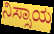
ನಿಸ್ಸಾಯ